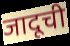
जादूची